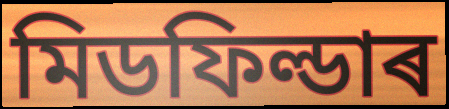
মিডফিল্ডাৰ